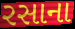
રસાના